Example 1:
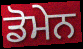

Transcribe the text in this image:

ਡੋਮੇਨ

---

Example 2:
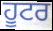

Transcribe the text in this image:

ਹੂਟਰ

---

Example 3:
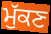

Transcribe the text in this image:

ਮੁੱਕਣ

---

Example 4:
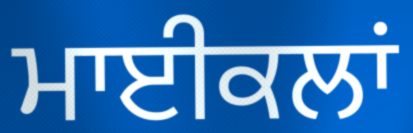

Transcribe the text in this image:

ਮਾਈਕਲਾਂ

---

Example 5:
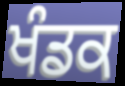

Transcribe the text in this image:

ਖੰਡਕ